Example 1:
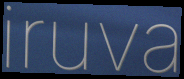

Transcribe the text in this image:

iruva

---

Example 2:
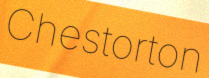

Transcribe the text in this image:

Chestorton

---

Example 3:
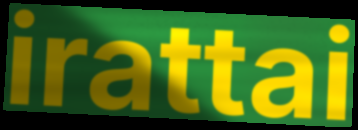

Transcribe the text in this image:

irattai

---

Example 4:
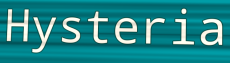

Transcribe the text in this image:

Hysteria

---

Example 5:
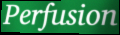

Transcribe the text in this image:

Perfusion